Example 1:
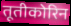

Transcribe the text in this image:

तूतीकोरिन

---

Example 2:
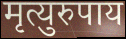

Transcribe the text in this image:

मृत्युरुपाय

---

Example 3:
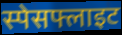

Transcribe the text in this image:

स्पेसफ्लाइट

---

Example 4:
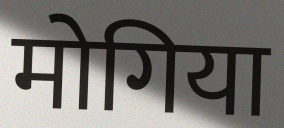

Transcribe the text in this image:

मोगिया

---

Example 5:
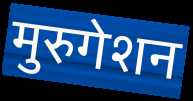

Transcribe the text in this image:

मुरुगेशन